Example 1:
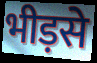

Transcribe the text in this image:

भीड़से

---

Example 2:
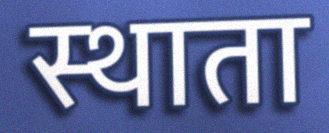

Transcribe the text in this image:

स्थाता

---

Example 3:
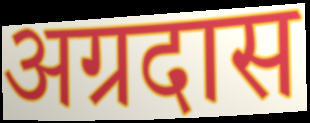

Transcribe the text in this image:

अग्रदास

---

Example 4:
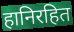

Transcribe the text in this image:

हानिरहित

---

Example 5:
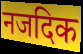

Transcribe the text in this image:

नजदिक